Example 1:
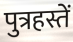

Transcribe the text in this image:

पुत्रहस्तें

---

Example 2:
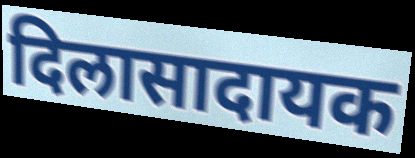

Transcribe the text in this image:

दिलासादायक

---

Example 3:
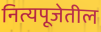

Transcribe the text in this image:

नित्यपूजेतील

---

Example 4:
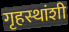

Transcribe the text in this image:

गृहस्थांशी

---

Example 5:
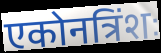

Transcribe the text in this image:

एकोनत्रिंशः